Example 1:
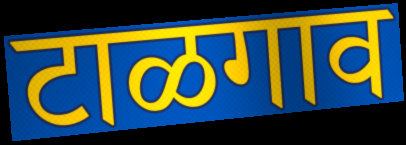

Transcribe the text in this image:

टाळगाव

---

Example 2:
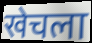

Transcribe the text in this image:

खेचला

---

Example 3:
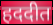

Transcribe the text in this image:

हददीत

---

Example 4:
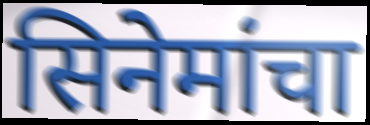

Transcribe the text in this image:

सिनेमांचा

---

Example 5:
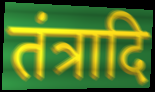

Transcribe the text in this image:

तंत्रादि